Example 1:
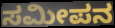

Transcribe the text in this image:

ಸಮೀಪನ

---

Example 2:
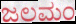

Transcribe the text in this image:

ಜಲಮಂ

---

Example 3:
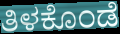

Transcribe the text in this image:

ತಿಳಕೊಂಡೆ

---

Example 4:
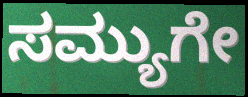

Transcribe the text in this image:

ಸಮ್ಯುಗೇ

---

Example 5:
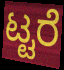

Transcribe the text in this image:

ಟ್ಟರೆ